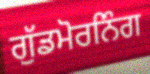
ਗੁੱਡਮੋਰਨਿੰਗ